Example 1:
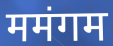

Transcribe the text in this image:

ममंगम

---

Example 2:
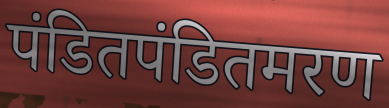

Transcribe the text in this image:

पंडितपंडितमरण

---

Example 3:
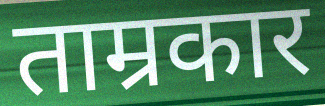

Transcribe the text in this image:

ताम्रकार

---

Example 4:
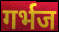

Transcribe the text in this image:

गर्भज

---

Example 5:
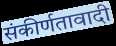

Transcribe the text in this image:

संकीर्णतावादी